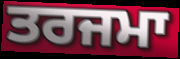
ਤਰਜਮਾ